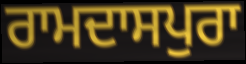
ਰਾਮਦਾਸਪੁਰਾ